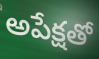
అపేక్షతో